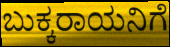
ಬುಕ್ಕರಾಯನಿಗೆ